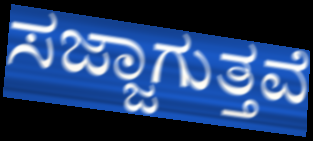
ಸಜ್ಜಾಗುತ್ತವೆ